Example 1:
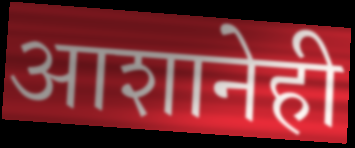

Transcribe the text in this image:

आशानेही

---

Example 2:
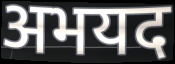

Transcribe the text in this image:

अभयद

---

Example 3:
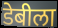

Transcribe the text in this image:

डेबीला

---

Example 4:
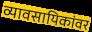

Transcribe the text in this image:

व्यावसायिकांवर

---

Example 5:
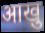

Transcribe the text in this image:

आखु